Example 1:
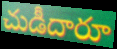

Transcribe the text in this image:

చుడీదారూ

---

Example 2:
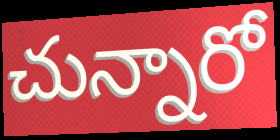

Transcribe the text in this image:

చున్నారో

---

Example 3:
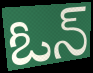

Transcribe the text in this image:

ఓన్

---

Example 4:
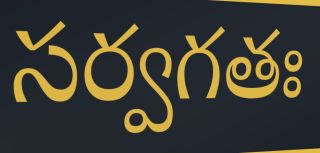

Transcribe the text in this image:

సర్వగతః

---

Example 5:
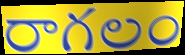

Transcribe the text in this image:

రాగలం